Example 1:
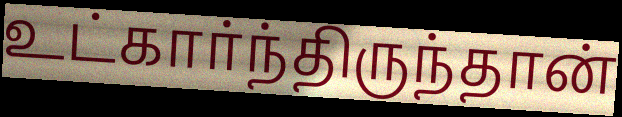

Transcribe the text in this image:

உட்கார்ந்திருந்தான்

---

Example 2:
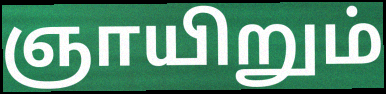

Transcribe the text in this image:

ஞாயிறும்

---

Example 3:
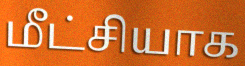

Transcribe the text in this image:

மீட்சியாக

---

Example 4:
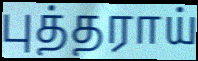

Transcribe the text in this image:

புத்தராய்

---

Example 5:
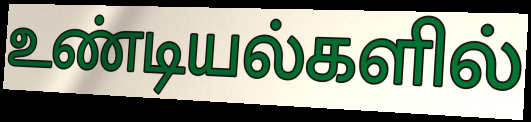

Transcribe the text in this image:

உண்டியல்களில்